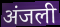
अंजली